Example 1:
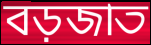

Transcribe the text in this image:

বড়জাত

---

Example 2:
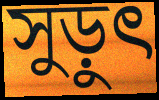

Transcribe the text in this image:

সুড়ুৎ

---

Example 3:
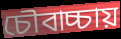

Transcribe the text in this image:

চৌবাচ্চায়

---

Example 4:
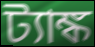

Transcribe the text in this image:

ট্যাঙ্ক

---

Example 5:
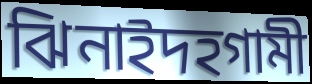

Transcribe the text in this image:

ঝিনাইদহগামী